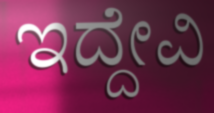
ಇದ್ದೇವಿ